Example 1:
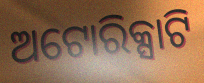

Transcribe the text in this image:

ଅଟୋରିକ୍ସାଟି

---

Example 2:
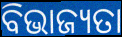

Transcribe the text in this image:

ବିଭାଜ୍ୟତା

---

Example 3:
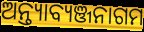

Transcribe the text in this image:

ଅନ୍ତ୍ୟାବ୍ୟଞ୍ଜନାଗମ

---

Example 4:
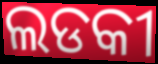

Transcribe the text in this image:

ଲଡକୀ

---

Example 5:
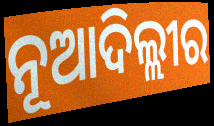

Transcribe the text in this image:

ନୂଆଦିଲ୍ଲୀର